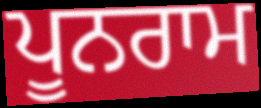
ਪੂਨਰਾਮ